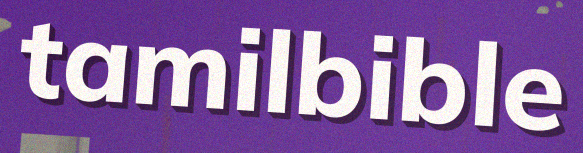
tamilbible